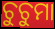
ଚୁଚୁମା